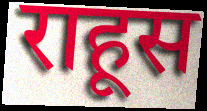
राहूस